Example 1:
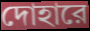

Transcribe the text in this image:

দোহারে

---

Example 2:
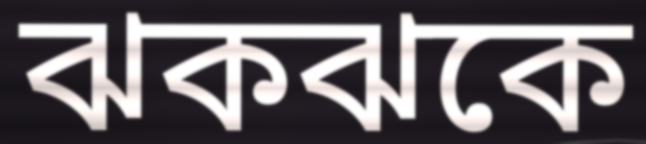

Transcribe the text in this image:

ঝকঝকে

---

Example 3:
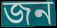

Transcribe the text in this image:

জন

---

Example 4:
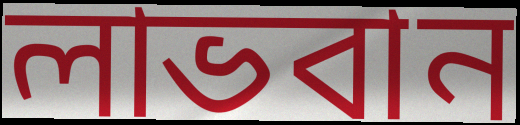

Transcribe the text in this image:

লাভবান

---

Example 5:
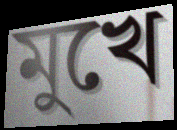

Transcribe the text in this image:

মুখে